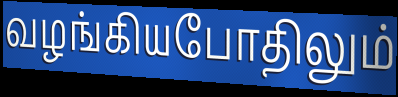
வழங்கியபோதிலும்